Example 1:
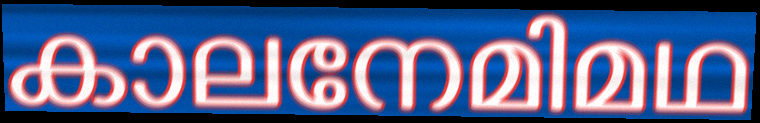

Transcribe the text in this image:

കാലനേമിമഥ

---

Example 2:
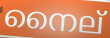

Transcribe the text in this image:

നൈല്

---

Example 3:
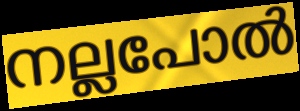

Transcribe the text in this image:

നല്ലപോൽ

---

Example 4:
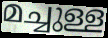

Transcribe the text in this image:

മച്ചുള്ള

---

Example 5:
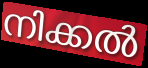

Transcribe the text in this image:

നിക്കൽ